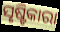
ସୃଷ୍ଟିକାରା